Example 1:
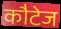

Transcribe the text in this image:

कौटेज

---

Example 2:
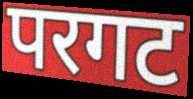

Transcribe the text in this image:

परगट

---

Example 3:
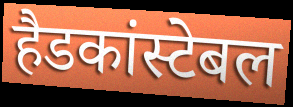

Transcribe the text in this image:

हैडकांस्टेबल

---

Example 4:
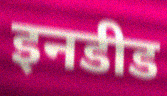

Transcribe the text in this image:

इनडीड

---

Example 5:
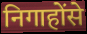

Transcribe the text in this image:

निगाहोंसे